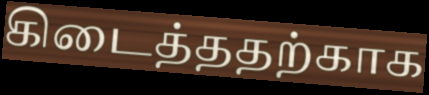
கிடைத்ததற்காக